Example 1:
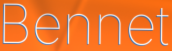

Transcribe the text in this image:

Bennet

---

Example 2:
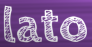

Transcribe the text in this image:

lato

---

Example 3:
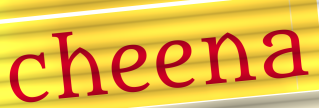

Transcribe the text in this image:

cheena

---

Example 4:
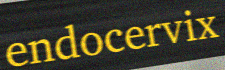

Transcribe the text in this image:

endocervix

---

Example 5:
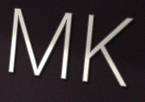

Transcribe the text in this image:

MK